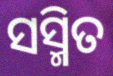
ସସ୍ମିତ